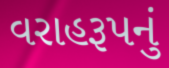
વરાહરૂપનું